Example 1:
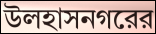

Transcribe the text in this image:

উলহাসনগরের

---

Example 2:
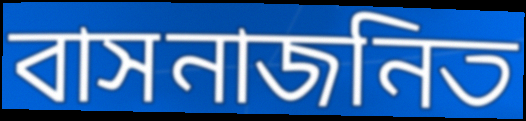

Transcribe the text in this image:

বাসনাজনিত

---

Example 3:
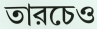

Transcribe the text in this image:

তারচেও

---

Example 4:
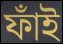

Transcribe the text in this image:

ফাঁই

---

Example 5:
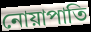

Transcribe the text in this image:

নোয়াপাতি